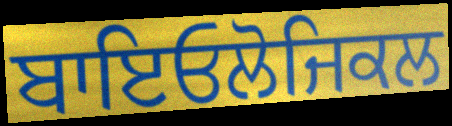
ਬਾਇਓਲੋਜਿਕਲ